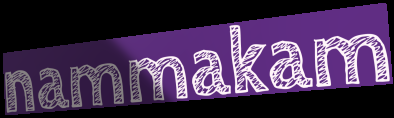
nammakam